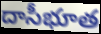
దాసీభూత